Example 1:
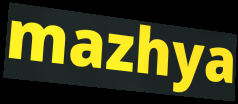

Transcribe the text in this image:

mazhya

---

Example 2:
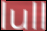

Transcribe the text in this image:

lull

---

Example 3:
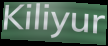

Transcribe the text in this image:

Kiliyur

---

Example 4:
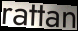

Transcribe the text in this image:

rattan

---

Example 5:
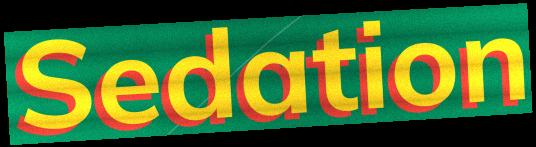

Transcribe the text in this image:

Sedation